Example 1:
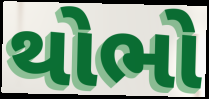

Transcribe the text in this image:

થોભો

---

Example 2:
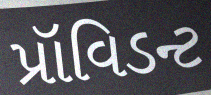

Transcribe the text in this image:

પ્રૉવિડન્ટ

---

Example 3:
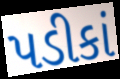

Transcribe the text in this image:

પડીકાં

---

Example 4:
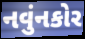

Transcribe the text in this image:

નવુંનકોર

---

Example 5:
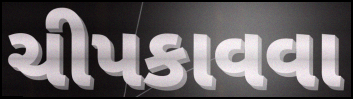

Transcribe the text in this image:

ચીપકાવવા